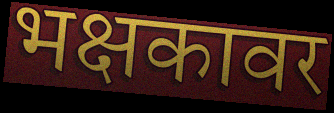
भक्षकावर